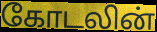
கோடலின்